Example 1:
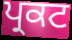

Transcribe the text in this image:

ਪ੍ਰਕਟ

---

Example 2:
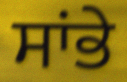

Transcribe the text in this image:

ਸਾਂਭੇ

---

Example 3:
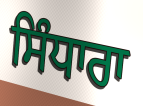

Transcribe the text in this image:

ਸਿੰਧਾਰਾ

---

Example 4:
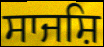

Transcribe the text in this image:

ਸਾਜਸ਼ਿ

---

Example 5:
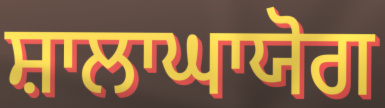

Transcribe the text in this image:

ਸ਼ਾਲਾਘਾਯੋਗ